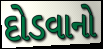
દોડવાનો